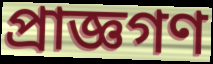
প্রাজ্ঞগণ